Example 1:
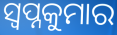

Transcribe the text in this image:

ସ୍ଵପ୍ନକୁମାର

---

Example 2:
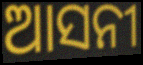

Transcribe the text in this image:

ଆସନୀ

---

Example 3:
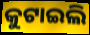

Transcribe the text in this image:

କୁଟାଇଲି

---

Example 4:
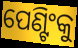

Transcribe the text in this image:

ପେଣ୍ଟିଂକୁ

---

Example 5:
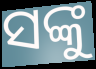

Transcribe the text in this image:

ସଙ୍କୁ